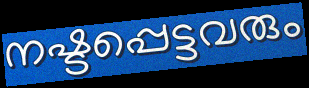
നഷ്ടപ്പെട്ടവരും